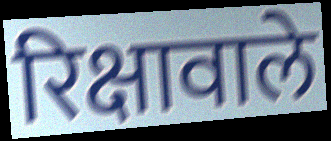
रिक्षावाले